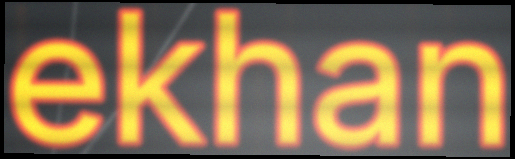
ekhan